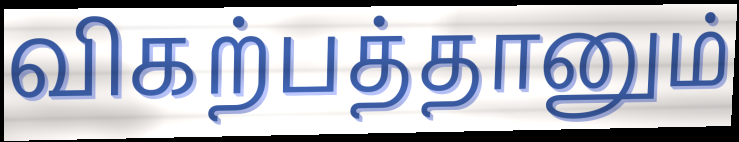
விகற்பத்தானும்